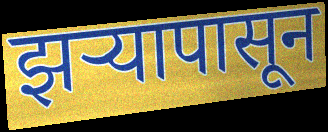
झऱ्यापासून